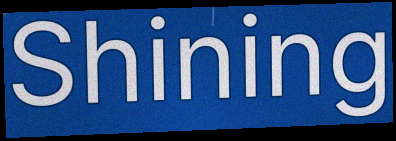
Shining